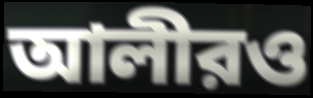
আলীরও